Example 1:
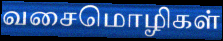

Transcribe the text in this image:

வசைமொழிகள்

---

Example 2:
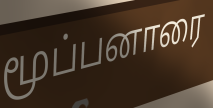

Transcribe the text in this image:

மூப்பனாரை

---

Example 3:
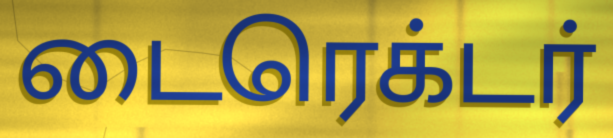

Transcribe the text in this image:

டைரெக்டர்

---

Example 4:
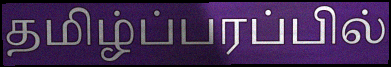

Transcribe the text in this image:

தமிழ்ப்பரப்பில்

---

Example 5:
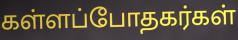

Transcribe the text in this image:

கள்ளப்போதகர்கள்